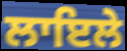
ਲਾਇਲੇ